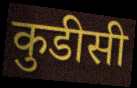
कुडीसी